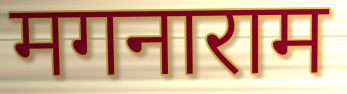
मगनाराम